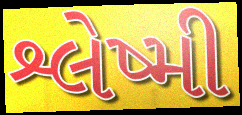
શ્લેષ્મી